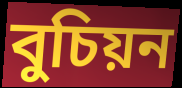
বুচিয়ন